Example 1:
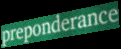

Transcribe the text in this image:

preponderance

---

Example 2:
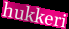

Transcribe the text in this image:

hukkeri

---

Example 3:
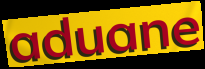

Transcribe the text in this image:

aduane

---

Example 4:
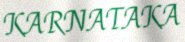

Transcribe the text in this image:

KARNATAKA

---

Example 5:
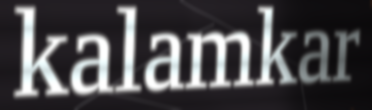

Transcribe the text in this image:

kalamkar